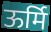
ऊर्मि